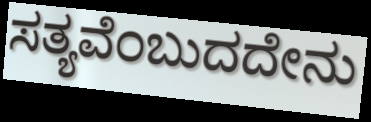
ಸತ್ಯವೆಂಬುದದೇನು